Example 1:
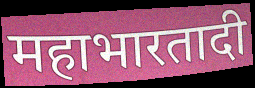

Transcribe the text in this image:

महाभारतादी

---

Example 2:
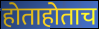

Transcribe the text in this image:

होताहोताच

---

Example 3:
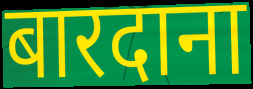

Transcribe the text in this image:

बारदाना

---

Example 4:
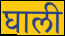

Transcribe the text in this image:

घाली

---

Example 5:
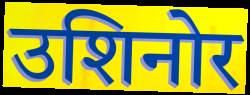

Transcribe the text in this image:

उशिनोर